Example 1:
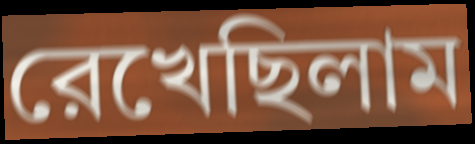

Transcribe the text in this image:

রেখেছিলাম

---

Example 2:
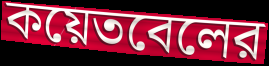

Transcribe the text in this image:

কয়েতবেলের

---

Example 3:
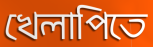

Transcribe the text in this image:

খেলাপিতে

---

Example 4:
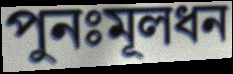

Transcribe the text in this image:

পুনঃমূলধন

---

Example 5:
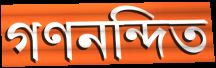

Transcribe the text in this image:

গণনন্দিত